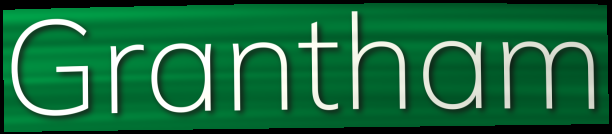
Grantham